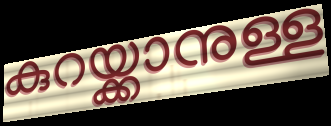
കുറയ്ക്കാനുള്ള